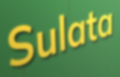
Sulata